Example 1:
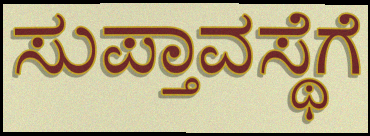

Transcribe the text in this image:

ಸುಪ್ತಾವಸ್ಥೆಗೆ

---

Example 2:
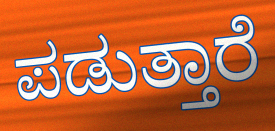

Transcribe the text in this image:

ಪಡುತ್ತಾರೆ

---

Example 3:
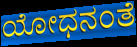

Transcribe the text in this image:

ಯೋಧನಂತೆ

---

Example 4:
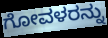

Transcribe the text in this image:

ಗೋವಳರನ್ನು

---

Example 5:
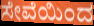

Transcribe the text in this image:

ಸೇವೆಯಿಂದ